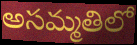
అసమ్మతిలో